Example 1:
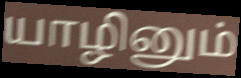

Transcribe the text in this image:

யாழினும்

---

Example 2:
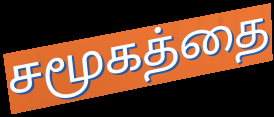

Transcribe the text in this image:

சமூகத்தை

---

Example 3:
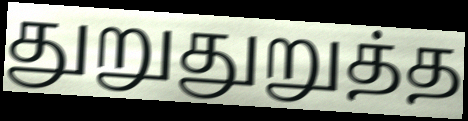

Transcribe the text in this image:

துறுதுறுத்த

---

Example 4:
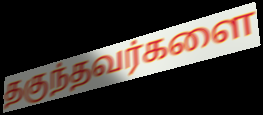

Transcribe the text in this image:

தகுந்தவர்களை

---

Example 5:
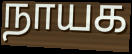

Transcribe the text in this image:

நாயக